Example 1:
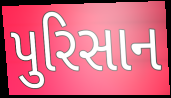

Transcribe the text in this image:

પુરિસાન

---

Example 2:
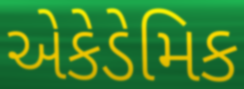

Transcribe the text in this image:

એકેડેમિક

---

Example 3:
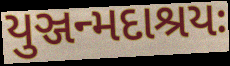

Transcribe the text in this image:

યુઞ્જન્મદાશ્રયઃ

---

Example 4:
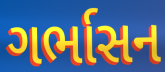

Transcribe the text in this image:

ગર્ભાસન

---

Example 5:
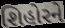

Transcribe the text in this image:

શિહોરને